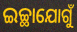
ଇଚ୍ଛାଯୋଗୁଁ